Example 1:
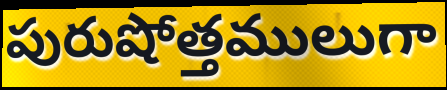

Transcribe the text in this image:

పురుషోత్తములుగా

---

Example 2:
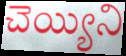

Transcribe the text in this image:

చెయ్యిని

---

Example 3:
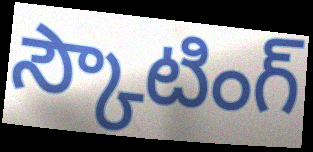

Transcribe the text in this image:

స్కౌటింగ్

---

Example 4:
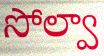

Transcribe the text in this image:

సోల్వా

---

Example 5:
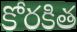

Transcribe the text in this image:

కోరకిత